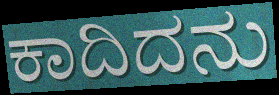
ಕಾದಿದನು